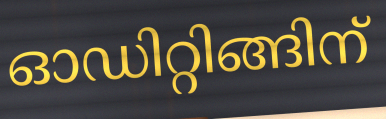
ഓഡിറ്റിങ്ങിന്